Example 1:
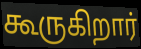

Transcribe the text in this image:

கூருகிறார்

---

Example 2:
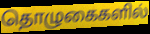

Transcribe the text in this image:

தொழுகைகளில்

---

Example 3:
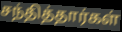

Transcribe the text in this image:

சந்தித்தார்கள்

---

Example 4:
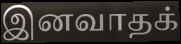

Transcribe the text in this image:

இனவாதக்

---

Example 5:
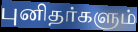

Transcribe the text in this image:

புனிதர்களும்